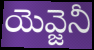
యెవ్జెనీ